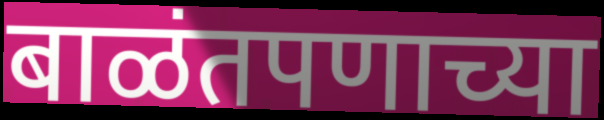
बाळंतपणाच्या